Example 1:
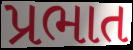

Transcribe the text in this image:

પ્રભાત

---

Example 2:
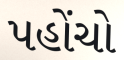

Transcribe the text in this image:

પહોંચો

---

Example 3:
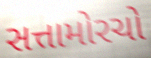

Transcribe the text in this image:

સત્તામોરચો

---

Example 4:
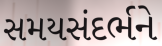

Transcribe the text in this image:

સમયસંદર્ભને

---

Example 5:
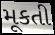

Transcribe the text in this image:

મૂકતી